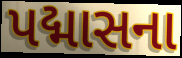
પદ્માસના